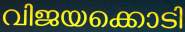
വിജയക്കൊടി